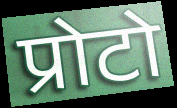
प्रोटो